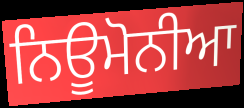
ਨਿਊਮੋਨੀਆ